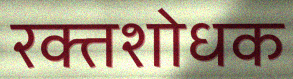
रक्तशोधक